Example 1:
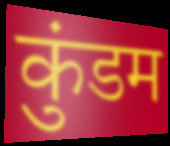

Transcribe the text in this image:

कुंडम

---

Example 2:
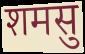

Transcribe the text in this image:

शमसु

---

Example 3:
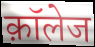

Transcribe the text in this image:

क़ॉलेज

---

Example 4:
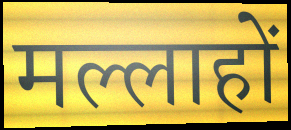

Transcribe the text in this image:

मल्लाहों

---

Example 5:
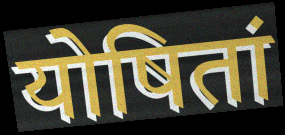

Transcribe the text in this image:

योषितां